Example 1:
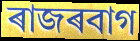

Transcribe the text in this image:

ৰাজৰবাগ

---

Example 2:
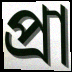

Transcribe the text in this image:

প্ৰা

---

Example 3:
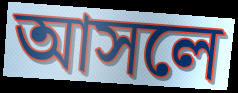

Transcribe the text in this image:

আসলে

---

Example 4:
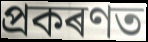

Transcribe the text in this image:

প্ৰকৰণত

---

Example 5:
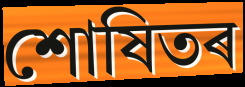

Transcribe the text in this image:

শোষিতৰ